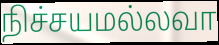
நிச்சயமல்லவா